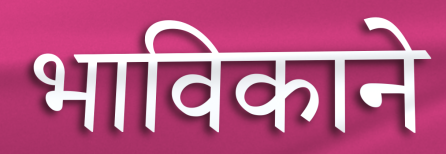
भाविकाने